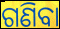
ଗଣିବା